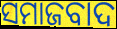
ସମାଜବାଦ